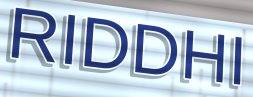
RIDDHI